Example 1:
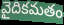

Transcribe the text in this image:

వైదికమతం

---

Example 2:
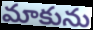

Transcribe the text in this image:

మాకును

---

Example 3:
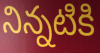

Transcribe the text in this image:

నిన్నటికి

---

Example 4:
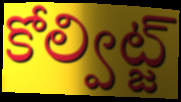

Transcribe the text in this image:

కోల్విట్జ్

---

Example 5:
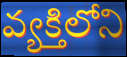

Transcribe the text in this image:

వ్యక్తిలోని